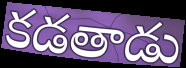
కడతాడు